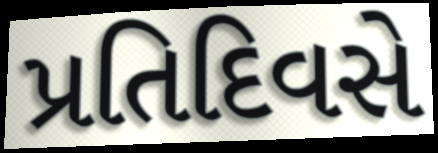
પ્રતિદિવસે